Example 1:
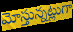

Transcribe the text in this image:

మోస్తున్నట్లుగా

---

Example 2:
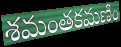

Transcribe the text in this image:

శమంతకమణిం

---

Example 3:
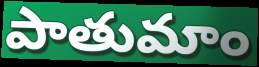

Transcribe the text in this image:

పాతుమాం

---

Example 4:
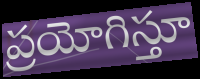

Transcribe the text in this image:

ప్రయోగిస్తూ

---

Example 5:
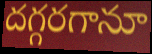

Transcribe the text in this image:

దగ్గరగానూ